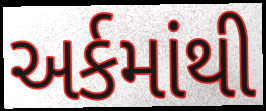
અર્કમાંથી